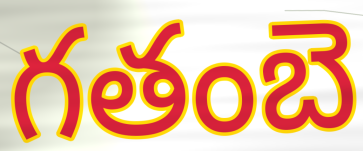
గతంబె